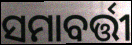
ସମାବର୍ତ୍ତୀ